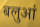
बलुआं